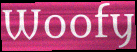
Woofy